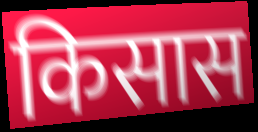
किसास